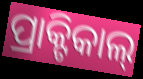
ପ୍ରାକ୍ଟିକାଲ୍